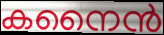
കനൈൻ